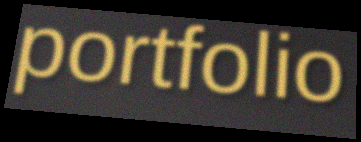
portfolio